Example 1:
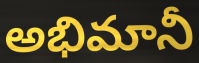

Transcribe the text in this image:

అభిమానీ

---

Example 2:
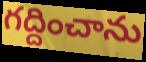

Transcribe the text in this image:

గద్దించాను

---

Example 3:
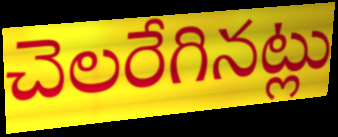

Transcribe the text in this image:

చెలరేగినట్లు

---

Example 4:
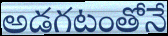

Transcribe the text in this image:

అడగటంతోనే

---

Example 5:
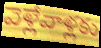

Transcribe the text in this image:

వెళ్లేవాళ్లకు